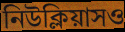
নিউক্লিয়াসও